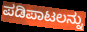
ಪಡಿಪಾಟಲನ್ನು